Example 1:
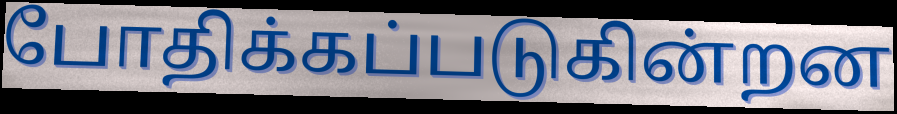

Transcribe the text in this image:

போதிக்கப்படுகின்றன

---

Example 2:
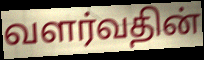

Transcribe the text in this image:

வளர்வதின்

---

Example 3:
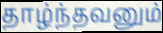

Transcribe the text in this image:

தாழ்ந்தவனும்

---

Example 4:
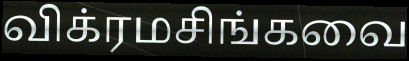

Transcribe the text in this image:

விக்ரமசிங்கவை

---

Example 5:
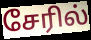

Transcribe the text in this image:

சேரில்